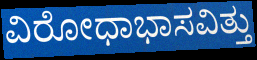
ವಿರೋಧಾಭಾಸವಿತ್ತು